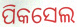
ପିକସେଲ